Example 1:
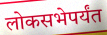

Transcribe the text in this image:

लोकसभेपर्यंत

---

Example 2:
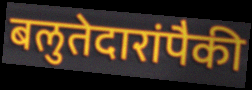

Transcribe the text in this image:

बलुतेदारांपैकी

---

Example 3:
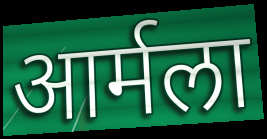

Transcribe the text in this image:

आर्मला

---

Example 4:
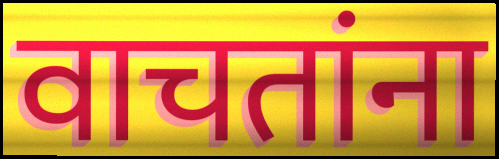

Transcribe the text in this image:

वाचतांना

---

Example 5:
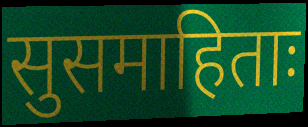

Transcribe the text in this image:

सुसमाहिताः